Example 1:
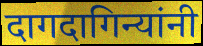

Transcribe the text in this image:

दागदागिन्यांनी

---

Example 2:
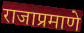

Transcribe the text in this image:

राजाप्रमाणे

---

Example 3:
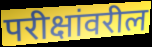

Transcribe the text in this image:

परीक्षांवरील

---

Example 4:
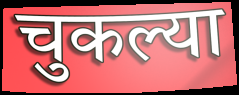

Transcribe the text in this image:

चुकल्या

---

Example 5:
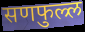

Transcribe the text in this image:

सणफुल्ल